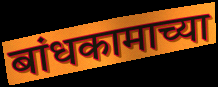
बांधकामाच्या